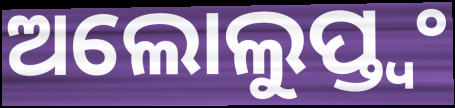
ଅଲୋଲୁପ୍ତ୍ୱଂ